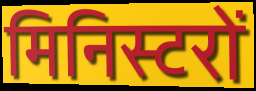
मिनिस्टरों